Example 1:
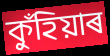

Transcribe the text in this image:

কুঁহিয়াৰ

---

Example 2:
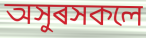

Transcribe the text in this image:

অসুৰসকলে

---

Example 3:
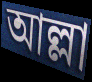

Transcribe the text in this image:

আল্লা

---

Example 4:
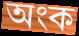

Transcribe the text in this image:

অংক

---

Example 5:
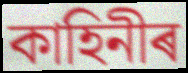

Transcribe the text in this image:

কাহিনীৰ